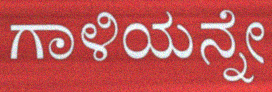
ಗಾಳಿಯನ್ನೇ